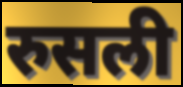
रुसली